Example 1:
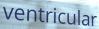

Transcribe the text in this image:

ventricular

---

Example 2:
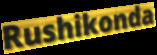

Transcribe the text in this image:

Rushikonda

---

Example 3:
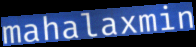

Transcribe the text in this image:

mahalaxmin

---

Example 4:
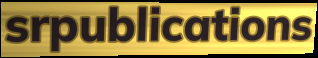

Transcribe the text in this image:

srpublications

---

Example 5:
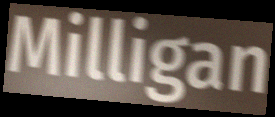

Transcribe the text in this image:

Milligan